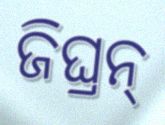
ଜିଘ୍ରନ୍